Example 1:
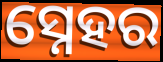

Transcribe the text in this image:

ସ୍ନେହର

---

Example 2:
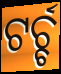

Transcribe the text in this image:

ଟର୍ଚ୍ଚ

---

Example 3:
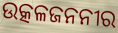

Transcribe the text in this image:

ଉତ୍କଳଜନନୀର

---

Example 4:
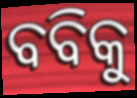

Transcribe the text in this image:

ବବିକୁ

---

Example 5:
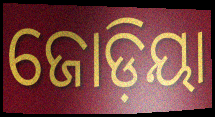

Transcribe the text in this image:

ଜୋଡ଼ିୟା